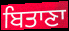
ਬਿਤਾਣਾ